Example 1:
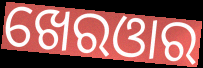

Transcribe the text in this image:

ଖେରଓାର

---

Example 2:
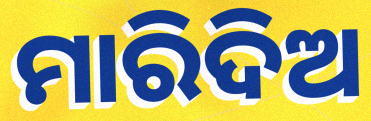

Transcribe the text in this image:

ମାରିଦିଅ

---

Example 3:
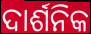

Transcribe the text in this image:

ଦାର୍ଶନିକ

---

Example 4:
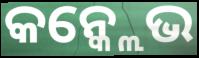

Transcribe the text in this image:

କନ୍କ୍ଲେଭ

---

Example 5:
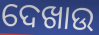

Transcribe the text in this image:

ଦେଖାଉ